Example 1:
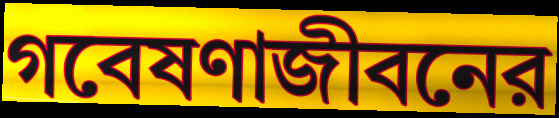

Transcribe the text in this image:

গবেষণাজীবনের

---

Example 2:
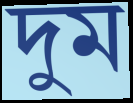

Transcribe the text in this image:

দুম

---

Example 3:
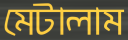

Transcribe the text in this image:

মেটালাম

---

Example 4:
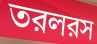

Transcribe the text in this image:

তরলরস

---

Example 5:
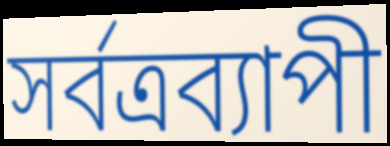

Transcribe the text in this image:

সর্বত্রব্যাপী